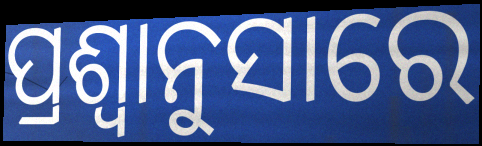
ପ୍ରଶ୍ବାନୁସାରେ